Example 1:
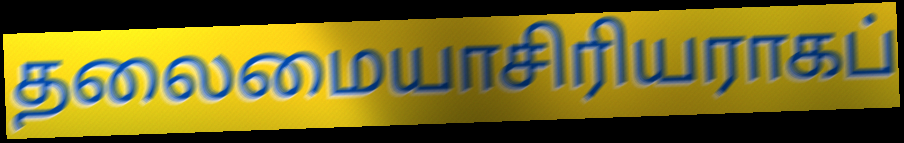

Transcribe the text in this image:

தலைமையாசிரியராகப்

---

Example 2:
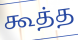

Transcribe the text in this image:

கூத்த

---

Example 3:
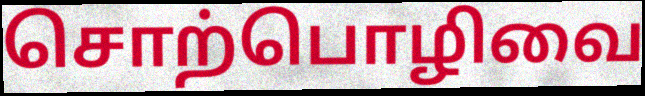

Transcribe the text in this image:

சொற்பொழிவை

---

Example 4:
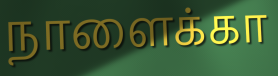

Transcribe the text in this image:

நாளைக்கா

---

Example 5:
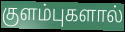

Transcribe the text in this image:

குளம்புகளால்